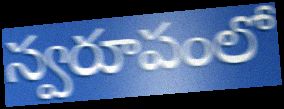
స్వరూపంలో